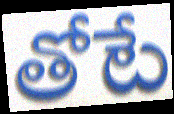
తోటే